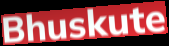
Bhuskute